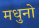
मधुनो